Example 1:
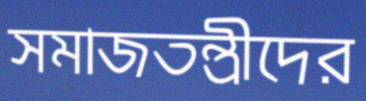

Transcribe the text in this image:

সমাজতন্ত্রীদের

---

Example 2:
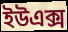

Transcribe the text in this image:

ইউএক্স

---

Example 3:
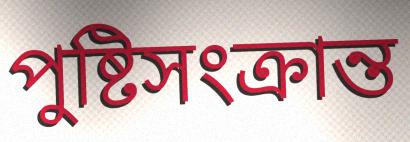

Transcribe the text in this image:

পুষ্টিসংক্রান্ত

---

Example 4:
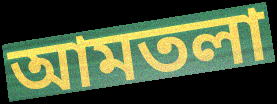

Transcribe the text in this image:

আমতলা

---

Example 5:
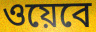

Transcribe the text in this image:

ওয়েবে